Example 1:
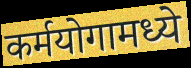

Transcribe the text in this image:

कर्मयोगामध्ये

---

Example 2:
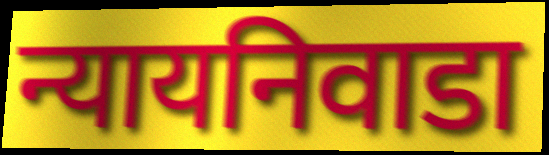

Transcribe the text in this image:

न्यायनिवाडा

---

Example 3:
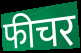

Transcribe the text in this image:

फीचर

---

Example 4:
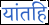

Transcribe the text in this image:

यांतहि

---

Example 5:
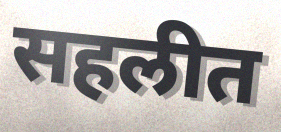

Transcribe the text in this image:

सहलीत